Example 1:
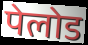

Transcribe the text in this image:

पेलोड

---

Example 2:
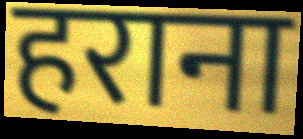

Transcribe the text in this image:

हराना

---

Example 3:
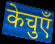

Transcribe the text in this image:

केचुएँ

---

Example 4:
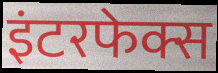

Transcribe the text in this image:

इंटरफेक्स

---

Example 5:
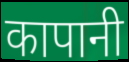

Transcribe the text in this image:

कापानी